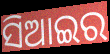
ସିଆଇର